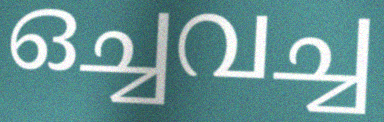
ഒച്ചവച്ച